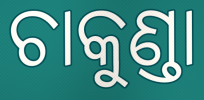
ଚାକୁଣ୍ଡା